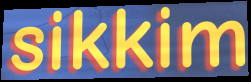
sikkim